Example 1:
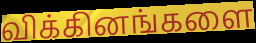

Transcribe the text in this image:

விக்கினங்களை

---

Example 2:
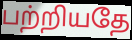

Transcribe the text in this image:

பற்றியதே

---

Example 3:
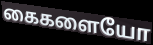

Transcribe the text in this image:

கைகளையோ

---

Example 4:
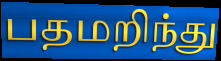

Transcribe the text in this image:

பதமறிந்து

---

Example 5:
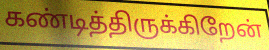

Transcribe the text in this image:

கண்டித்திருக்கிறேன்